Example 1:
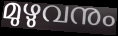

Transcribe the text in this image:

മുഴുവനും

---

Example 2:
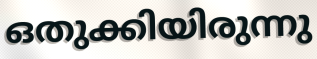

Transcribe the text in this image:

ഒതുക്കിയിരുന്നു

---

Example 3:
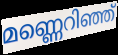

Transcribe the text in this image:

മണ്ണെറിഞ്ഞ്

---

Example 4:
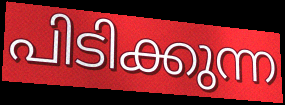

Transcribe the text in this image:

പിടിക്കുന്ന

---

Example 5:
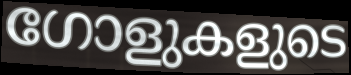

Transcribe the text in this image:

ഗോളുകളുടെ